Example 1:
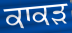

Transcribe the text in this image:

ਕਾਕੜ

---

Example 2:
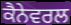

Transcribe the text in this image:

ਕੈਨੇਵਰਲ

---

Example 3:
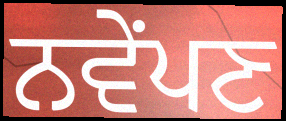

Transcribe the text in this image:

ਨਵੇਂਪਣ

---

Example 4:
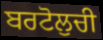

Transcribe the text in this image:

ਬਰਟੋਲੁਚੀ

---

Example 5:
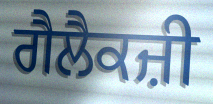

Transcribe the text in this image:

ਗੈਲੈਕਜ਼ੀ